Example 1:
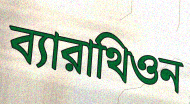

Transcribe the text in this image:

ব্যারাথিওন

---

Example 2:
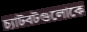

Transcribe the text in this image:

চ্যাটবটগুলোকে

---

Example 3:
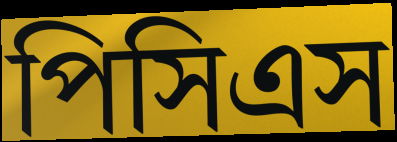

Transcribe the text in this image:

পিসিএস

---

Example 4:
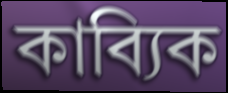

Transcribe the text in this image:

কাব্যিক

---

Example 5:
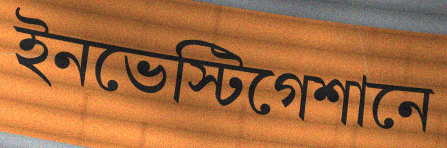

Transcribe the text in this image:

ইনভেস্টিগেশানে